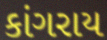
કાંગરાય